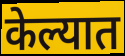
केल्यात